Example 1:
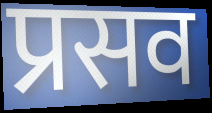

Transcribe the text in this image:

प्रसव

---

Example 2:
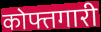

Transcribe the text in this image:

कोफ्तगारी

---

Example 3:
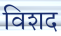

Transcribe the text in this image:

विशद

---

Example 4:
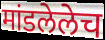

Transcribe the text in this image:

मांडलेलेच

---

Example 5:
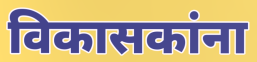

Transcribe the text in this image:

विकासकांना